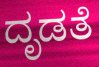
ದೃಡತೆ